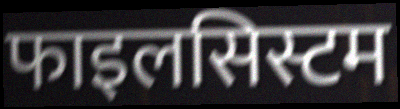
फाइलसिस्टम